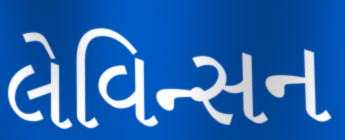
લેવિન્સન